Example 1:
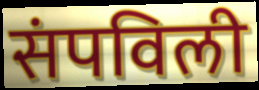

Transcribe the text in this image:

संपविली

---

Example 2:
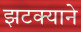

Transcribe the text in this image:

झटक्याने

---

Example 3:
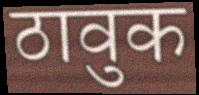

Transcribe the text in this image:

ठावुक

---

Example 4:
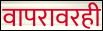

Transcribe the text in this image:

वापरावरही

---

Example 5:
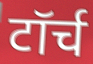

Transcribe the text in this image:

टॉर्च